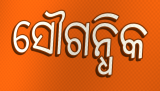
ସୌଗନ୍ଧିକ